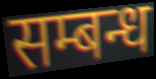
सम्बन्ध